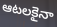
ఆటలకైనా